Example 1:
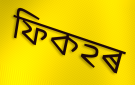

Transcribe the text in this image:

ফিকহৰ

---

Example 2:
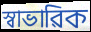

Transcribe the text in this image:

স্বাভাৱিক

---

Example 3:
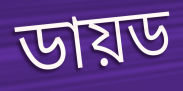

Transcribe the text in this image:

ডায়ড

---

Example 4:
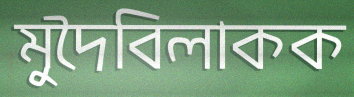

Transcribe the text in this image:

মুদৈবিলাকক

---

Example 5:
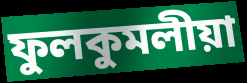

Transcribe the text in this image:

ফুলকুমলীয়া